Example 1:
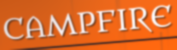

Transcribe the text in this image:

CAMPFIRE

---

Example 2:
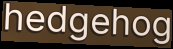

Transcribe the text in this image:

hedgehog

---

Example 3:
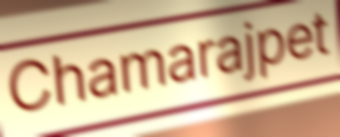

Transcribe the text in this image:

Chamarajpet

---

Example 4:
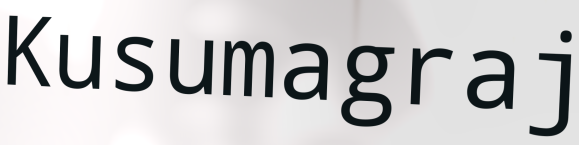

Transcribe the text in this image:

Kusumagraj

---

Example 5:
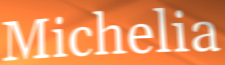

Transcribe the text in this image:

Michelia